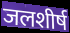
जलशीर्ष